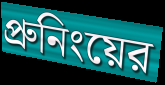
প্রুনিংয়ের